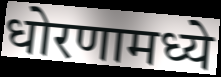
धोरणामध्ये